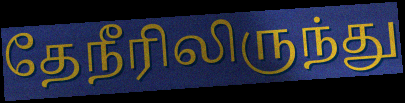
தேநீரிலிருந்து